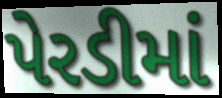
પેરડીમાં